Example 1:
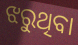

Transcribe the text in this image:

ଝରୁଥିବା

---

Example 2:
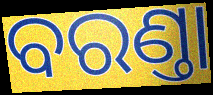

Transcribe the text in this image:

ବରଣ୍ତା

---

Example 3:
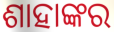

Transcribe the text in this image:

ଶାହାଙ୍କର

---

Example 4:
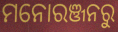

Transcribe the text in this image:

ମନୋରଞ୍ଜନରୁ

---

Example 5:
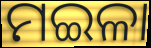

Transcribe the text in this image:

ମଇଳା